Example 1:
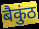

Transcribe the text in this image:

बैकुंठ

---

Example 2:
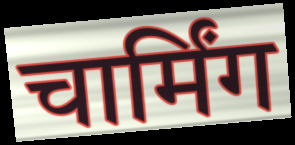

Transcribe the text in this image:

चार्मिंग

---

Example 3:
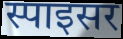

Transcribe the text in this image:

स्पाइसर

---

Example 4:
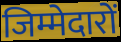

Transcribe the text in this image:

जिम्मेदारों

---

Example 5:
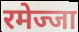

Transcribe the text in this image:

रमेज्जा